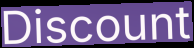
Discount